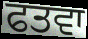
ਫਤਵਾ